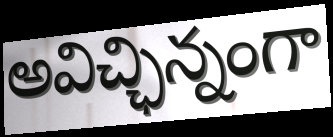
అవిచ్ఛిన్నంగా